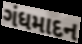
ગંધમાદન